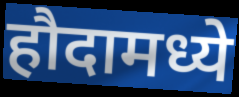
हौदामध्ये